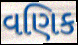
વણિક